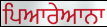
ਪਿਆਰੇਆਨਾ